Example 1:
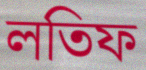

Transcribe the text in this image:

লতিফ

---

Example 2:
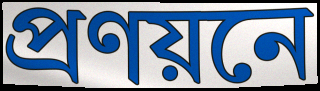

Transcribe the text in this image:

প্ৰণয়নে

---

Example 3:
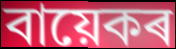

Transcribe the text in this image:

বায়েকৰ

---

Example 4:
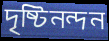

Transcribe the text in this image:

দৃষ্টিনন্দন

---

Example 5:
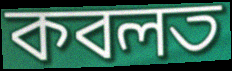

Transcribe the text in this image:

কবলত